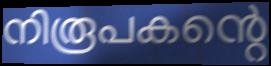
നിരൂപകന്റെ